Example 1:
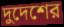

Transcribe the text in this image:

দুদেশের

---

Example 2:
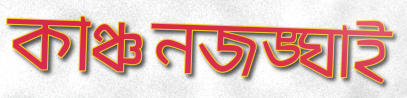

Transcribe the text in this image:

কাঞ্চনজঙ্ঘাই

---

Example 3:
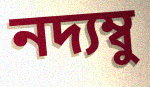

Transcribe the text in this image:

নদ্যম্বু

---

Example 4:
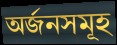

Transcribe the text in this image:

অর্জনসমূহ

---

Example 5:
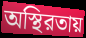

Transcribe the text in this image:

অস্থিরতায়